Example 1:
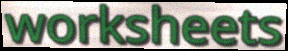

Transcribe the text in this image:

worksheets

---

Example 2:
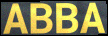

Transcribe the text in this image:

ABBA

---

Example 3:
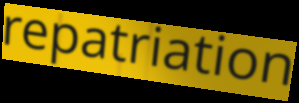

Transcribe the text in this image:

repatriation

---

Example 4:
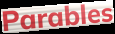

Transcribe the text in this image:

Parables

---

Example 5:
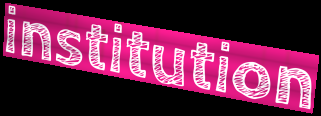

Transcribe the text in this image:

institution